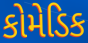
કોમેડિક